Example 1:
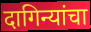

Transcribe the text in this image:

दागिन्यांचा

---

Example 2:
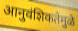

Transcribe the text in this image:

आनुवंशिकतेमुळे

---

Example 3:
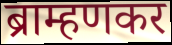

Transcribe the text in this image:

ब्राम्हणकर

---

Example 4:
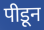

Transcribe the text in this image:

पीडून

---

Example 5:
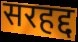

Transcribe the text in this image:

सरहद्द